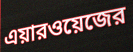
এয়ারওয়েজের